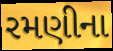
રમણીના